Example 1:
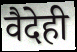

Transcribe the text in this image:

वैदेही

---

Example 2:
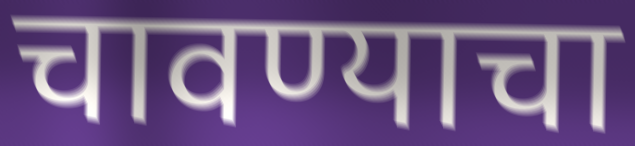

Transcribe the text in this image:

चावण्याचा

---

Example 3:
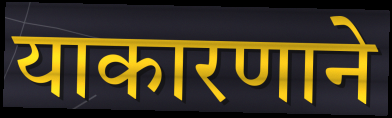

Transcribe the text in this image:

याकारणाने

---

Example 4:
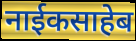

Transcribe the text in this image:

नाईकसाहेब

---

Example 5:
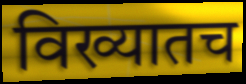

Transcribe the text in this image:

विख्यातच